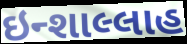
ઇન્શાલ્લાહ